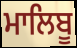
ਮਾਲਿਬੂ